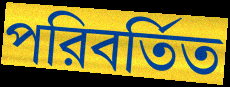
পরিবর্তিত